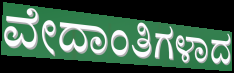
ವೇದಾಂತಿಗಳಾದ